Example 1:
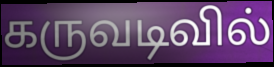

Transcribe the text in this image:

கருவடிவில்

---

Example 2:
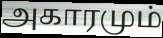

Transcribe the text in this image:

அகாரமும்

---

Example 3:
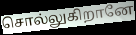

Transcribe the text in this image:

சொல்லுகிறானே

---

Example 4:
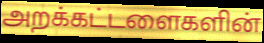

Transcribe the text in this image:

அறக்கட்டளைகளின்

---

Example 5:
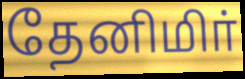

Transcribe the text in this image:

தேனிமிர்